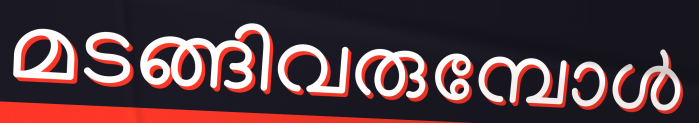
മടങ്ങിവരുമ്പോൾ